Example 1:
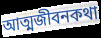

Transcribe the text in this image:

আত্মজীবনকথা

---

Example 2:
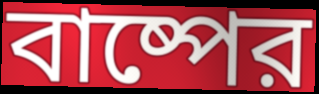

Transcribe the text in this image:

বাষ্পের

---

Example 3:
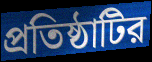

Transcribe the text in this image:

প্রতিষ্ঠাটির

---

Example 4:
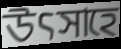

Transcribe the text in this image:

উৎসাহে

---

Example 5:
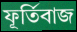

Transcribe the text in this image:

ফূর্তিবাজ